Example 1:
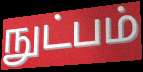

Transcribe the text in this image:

நுட்பம்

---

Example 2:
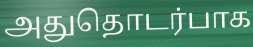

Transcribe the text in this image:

அதுதொடர்பாக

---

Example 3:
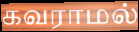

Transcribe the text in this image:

கவராமல்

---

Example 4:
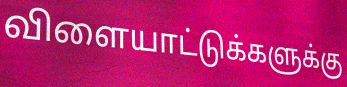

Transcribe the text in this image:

விளையாட்டுக்களுக்கு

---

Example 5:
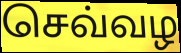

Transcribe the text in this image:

செவ்வழ